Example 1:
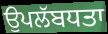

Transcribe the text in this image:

ਉਪਲੱਬਧਤਾ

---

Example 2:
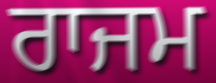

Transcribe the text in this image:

ਰਾਜਮ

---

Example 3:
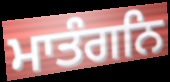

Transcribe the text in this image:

ਮਾਤੰਗਨਿ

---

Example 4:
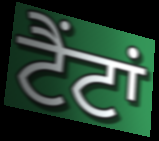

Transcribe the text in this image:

ਟੈਂਟਾਂ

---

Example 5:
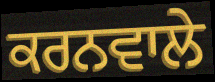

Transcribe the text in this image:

ਕਰਨਵਾਲੇ